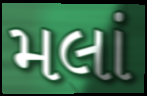
મલાં